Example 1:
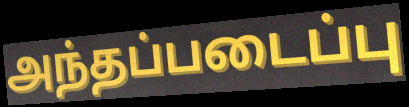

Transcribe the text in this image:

அந்தப்படைப்பு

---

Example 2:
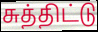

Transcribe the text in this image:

சுத்திட்டு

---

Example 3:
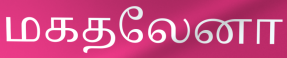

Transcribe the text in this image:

மகதலேனா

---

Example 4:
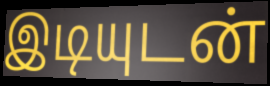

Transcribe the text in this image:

இடியுடன்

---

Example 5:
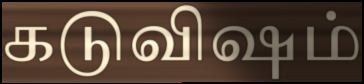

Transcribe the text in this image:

கடுவிஷம்